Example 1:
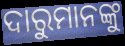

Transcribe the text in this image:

ଦାରୁମାନଙ୍କୁ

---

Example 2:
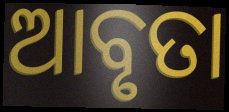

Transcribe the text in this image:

ଆବୃତା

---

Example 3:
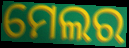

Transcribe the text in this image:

ମେଲର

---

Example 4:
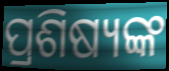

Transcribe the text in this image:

ପ୍ରଶିଷ୍ୟଙ୍କ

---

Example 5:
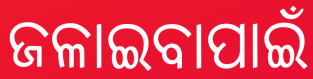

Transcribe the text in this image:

ଜଳାଇବାପାଇଁ